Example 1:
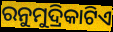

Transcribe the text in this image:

ରନୁମୁଦ୍ରିକାଟିଏ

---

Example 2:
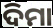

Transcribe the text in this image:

ଦିମା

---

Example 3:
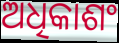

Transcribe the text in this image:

ଅଧିକାଶଂ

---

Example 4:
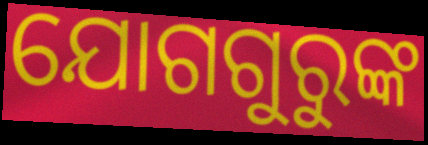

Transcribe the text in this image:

ଯୋଗଗୁରୁଙ୍କ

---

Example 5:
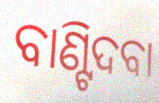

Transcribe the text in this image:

ବାଣ୍ଟିଦବା